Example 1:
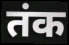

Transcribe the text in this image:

तंक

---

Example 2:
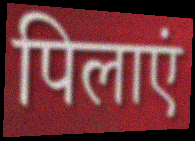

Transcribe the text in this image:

पिलाएं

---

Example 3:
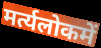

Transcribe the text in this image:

मर्त्यलोकमें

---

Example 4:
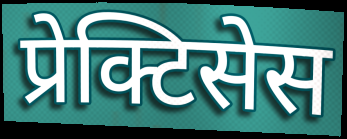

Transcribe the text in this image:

प्रेक्टिसेस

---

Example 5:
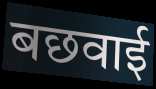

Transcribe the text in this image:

बछवाई